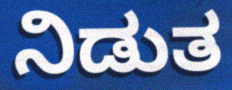
ನಿಡುತ